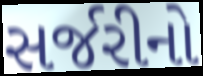
સર્જરીનો